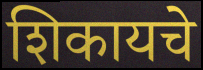
शिकायचे